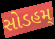
સોડહમ્